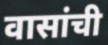
वासांची